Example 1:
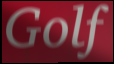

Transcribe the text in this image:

Golf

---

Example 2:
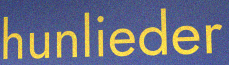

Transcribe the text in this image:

hunlieder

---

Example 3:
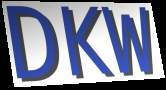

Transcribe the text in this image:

DKW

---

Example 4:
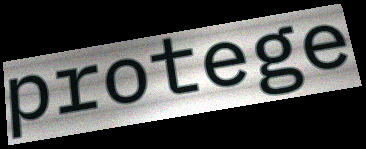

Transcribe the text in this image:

protege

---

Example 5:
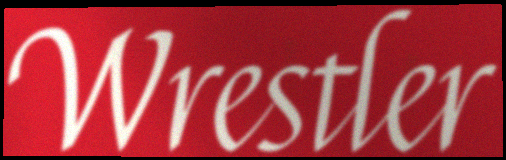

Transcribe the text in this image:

Wrestler